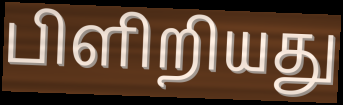
பிளிறியது